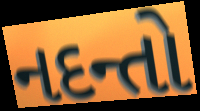
નદન્તો